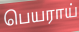
பெயராய்